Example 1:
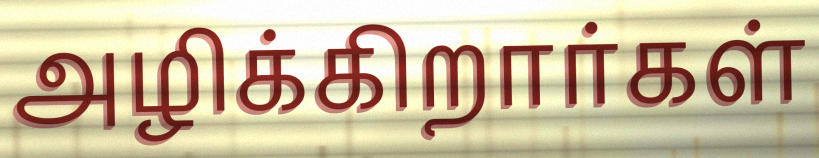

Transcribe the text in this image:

அழிக்கிறார்கள்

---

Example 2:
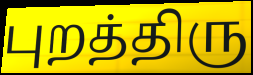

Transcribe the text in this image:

புறத்திரு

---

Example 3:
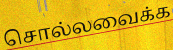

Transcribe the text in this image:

சொல்லவைக்க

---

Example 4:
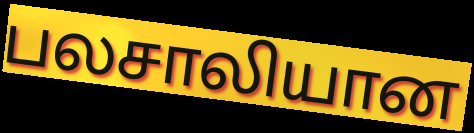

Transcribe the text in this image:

பலசாலியான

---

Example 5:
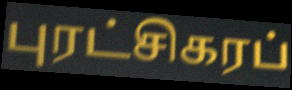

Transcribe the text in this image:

புரட்சிகரப்